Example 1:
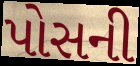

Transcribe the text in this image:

પોસની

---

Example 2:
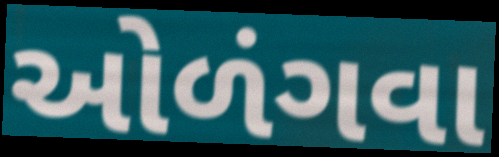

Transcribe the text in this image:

ઓળંગવા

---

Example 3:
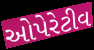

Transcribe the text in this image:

ઓપેરેટીવ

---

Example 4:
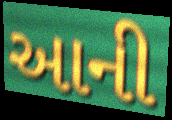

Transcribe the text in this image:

આની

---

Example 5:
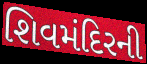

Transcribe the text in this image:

શિવમંદિરની